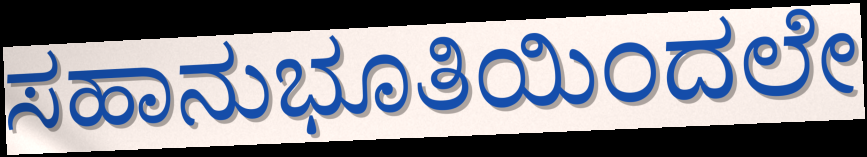
ಸಹಾನುಭೂತಿಯಿಂದಲೇ